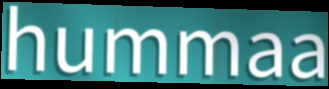
hummaa